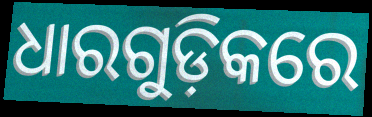
ଧାରଗୁଡ଼ିକରେ